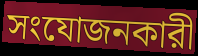
সংযোজনকারী